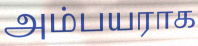
அம்பயராக